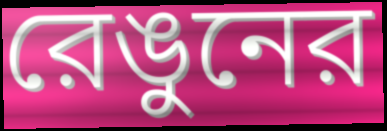
রেঙুনের